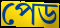
পেড